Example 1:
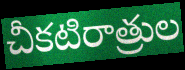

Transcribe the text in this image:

చీకటిరాత్రుల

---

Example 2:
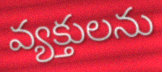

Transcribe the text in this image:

వ్యక్తులను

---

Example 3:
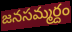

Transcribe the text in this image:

జనసమ్మర్దం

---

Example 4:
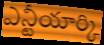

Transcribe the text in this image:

ఎన్టీయార్కి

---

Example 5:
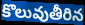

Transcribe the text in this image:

కొలువుతీరిన